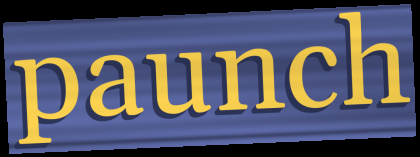
paunch